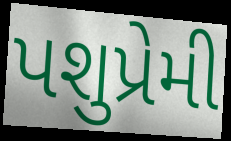
પશુપ્રેમી